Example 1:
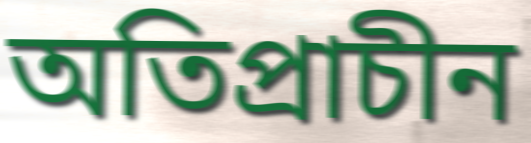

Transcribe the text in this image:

অতিপ্রাচীন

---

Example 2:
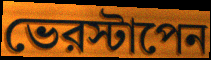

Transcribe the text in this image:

ভেরস্টাপেন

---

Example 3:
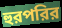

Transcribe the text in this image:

হুরপরির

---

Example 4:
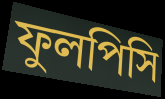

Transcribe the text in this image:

ফুলপিসি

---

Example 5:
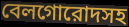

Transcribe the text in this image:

বেলগোরোদসহ